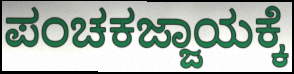
ಪಂಚಕಜ್ಜಾಯಕ್ಕೆ